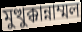
মুত্থুক্কান্নাম্মল